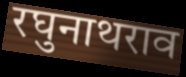
रघुनाथराव